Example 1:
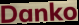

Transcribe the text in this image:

Danko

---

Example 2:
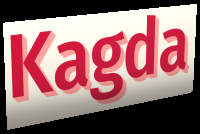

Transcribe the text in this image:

Kagda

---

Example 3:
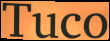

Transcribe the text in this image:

Tuco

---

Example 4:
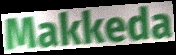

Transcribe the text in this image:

Makkeda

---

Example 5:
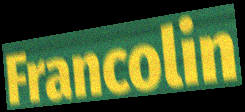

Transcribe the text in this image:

Francolin